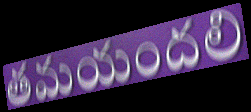
తమయందలి